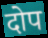
दोप